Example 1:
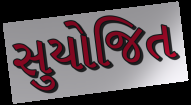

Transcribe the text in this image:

સુયોજિત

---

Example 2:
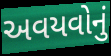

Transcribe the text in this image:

અવયવોનું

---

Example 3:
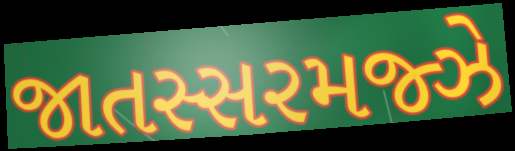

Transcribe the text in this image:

જાતસ્સરમજ્ઝે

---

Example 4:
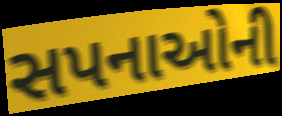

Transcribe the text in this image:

સપનાઓની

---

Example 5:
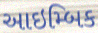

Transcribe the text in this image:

આઇમ્બિક